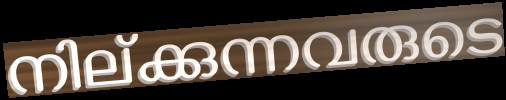
നില്ക്കുന്നവരുടെ